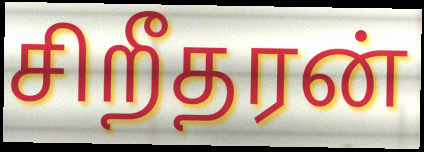
சிறீதரன்